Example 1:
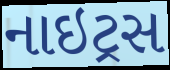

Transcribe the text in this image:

નાઇટ્રસ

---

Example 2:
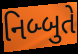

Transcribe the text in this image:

નિબ્બુતે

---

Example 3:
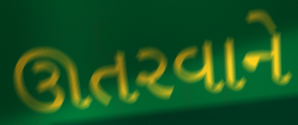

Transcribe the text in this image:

ઊતરવાને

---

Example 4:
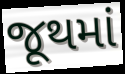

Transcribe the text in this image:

જૂથમાં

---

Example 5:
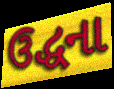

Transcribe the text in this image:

ઉદ્ધના